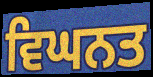
ਵਿਘਨਤ